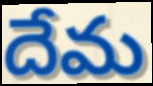
దేమ